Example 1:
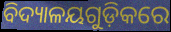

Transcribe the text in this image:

ବିଦ୍ୟାଳୟଗୁଡ଼ିକରେ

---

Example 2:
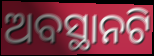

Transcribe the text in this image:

ଅବସ୍ଥାନଟି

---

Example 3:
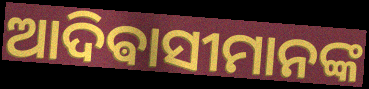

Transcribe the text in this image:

ଆଦିଵାସୀମାନଙ୍କ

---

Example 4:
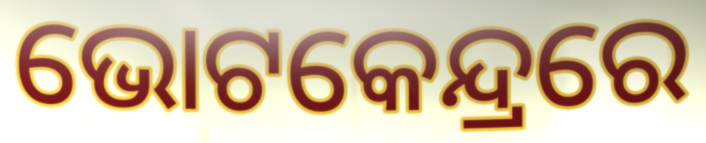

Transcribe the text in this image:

ଭୋଟକେନ୍ଦ୍ରରେ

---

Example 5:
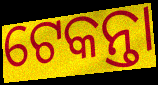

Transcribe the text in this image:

ଟେକନ୍ତା